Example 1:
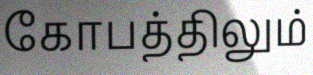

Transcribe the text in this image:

கோபத்திலும்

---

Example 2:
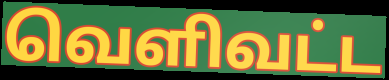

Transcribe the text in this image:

வெளிவட்ட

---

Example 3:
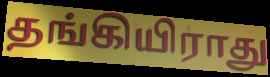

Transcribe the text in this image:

தங்கியிராது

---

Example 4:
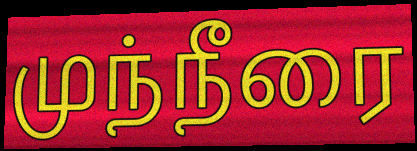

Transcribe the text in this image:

முந்நீரை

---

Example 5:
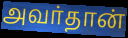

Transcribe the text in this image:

அவர்தான்